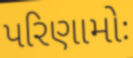
પરિણામોઃ